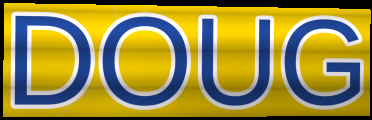
DOUG